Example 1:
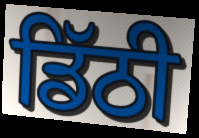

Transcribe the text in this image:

ਡਿੱਠੀ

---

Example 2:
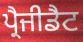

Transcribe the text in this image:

ਪ੍ਰੈਜੀਡੈਟ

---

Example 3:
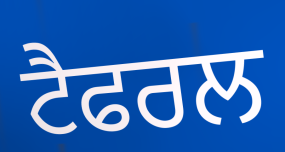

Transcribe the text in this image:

ਟੈਫਰਲ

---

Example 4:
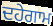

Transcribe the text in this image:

ਦਹੇਗਾਮ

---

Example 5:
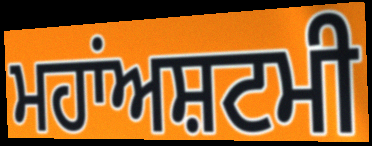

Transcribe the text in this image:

ਮਹਾਂਅਸ਼ਟਮੀ